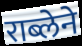
राब्लेने